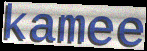
kamee